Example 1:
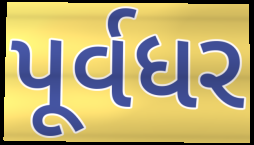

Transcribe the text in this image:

પૂર્વધર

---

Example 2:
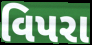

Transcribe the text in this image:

વિપરા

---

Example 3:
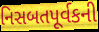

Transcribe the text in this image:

નિસબતપૂર્વકની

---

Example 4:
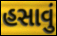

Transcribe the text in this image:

હસાવું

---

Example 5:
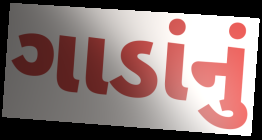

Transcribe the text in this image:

ગાડાંનું